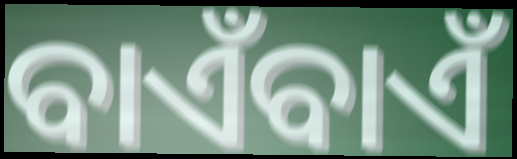
ବାଏଁବାଏଁ